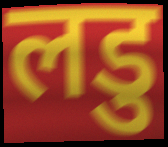
लडु